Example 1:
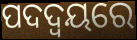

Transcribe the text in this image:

ପଦଦ୍ୱୟରେ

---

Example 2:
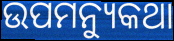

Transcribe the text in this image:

ଉପମନ୍ୟୁକଥା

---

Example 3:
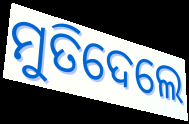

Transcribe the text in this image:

ମୁତିଦେଲେ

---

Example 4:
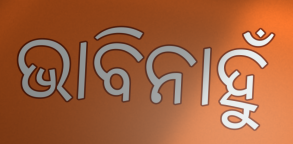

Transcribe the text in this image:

ଭାବିନାହୁଁ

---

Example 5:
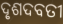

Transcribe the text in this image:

ଦୃଶଦବତୀ